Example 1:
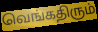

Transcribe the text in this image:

வெங்கதிரும்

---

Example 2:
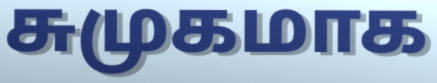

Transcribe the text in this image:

சுமுகமாக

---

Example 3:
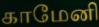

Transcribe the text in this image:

காமேனி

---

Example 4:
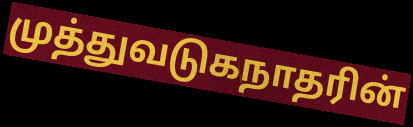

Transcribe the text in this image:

முத்துவடுகநாதரின்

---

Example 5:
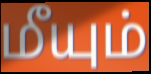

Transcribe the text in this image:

மீயும்